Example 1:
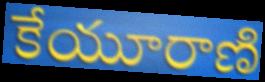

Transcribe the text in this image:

కేయూరాణి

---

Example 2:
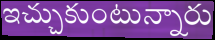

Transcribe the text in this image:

ఇచ్చుకుంటున్నారు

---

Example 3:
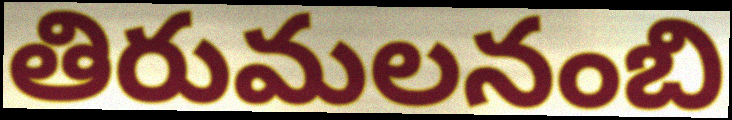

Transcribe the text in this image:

తిరుమలనంబి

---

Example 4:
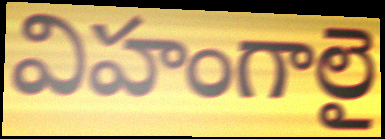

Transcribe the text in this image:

విహంగాలై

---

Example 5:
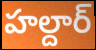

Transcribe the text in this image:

హల్దార్